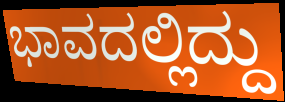
ಭಾವದಲ್ಲಿದ್ದು